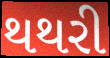
થથરી